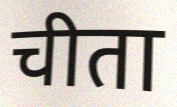
चीता